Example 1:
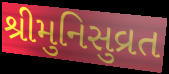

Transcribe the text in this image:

શ્રીમુનિસુવ્રત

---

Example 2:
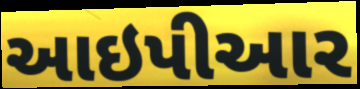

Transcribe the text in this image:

આઇપીઆર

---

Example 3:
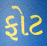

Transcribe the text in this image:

ફોટ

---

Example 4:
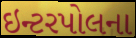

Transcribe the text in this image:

ઇન્ટરપોલના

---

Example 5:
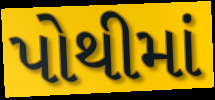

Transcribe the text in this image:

પોથીમાં